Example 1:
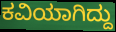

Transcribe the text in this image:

ಕವಿಯಾಗಿದ್ದು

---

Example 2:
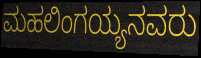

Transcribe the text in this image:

ಮಹಲಿಂಗಯ್ಯನವರು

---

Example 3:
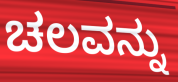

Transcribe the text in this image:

ಚಲವನ್ನು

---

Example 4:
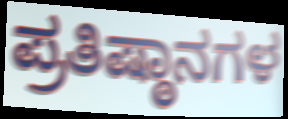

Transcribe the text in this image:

ಪ್ರತಿಷ್ಠಾನಗಳ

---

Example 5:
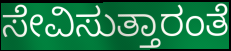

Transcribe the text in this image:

ಸೇವಿಸುತ್ತಾರಂತೆ